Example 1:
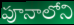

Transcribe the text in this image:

పూనాలోని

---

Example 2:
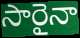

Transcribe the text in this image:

సారైనా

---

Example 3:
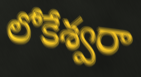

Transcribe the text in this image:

లోకేశ్వరా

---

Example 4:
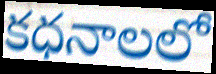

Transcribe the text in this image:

కధనాలలో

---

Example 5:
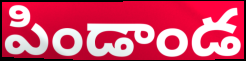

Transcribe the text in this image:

పిండాండ